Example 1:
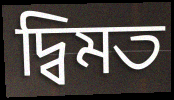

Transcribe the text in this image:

দ্বিমত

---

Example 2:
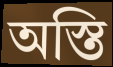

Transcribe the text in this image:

অস্তি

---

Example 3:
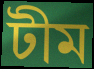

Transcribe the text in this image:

টীম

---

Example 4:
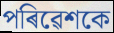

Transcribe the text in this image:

পৰিৱেশকে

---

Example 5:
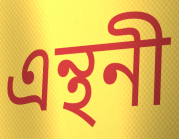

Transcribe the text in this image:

এন্থনী